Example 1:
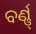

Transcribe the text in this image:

ବର୍ଣ୍ଣ୍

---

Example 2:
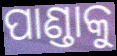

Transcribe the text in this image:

ପାଣ୍ଡାକୁ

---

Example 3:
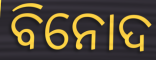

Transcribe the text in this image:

ବିନୋଦ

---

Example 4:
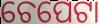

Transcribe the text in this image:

ଚେପେଟା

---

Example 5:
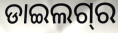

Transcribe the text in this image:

ଡାଇଲଗ୍‌ର